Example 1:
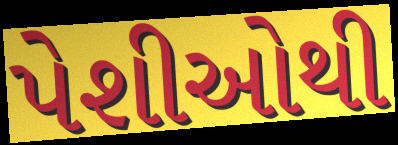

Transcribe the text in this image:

પેશીઓથી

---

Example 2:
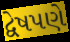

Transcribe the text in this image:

દ્વેષપણે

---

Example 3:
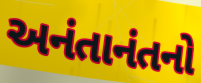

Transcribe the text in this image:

અનંતાનંતનો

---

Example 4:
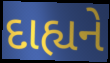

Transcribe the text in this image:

દાહ્યને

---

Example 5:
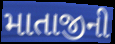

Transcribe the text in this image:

માતાજીની